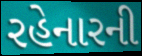
રહેનારની